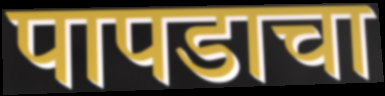
पापडाचा